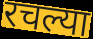
रचल्या